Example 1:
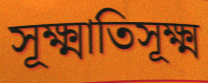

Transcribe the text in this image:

সূক্ষ্মাতিসূক্ষ্ম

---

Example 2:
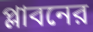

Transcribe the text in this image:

প্লাবনের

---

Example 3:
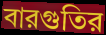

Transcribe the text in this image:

বারগুতির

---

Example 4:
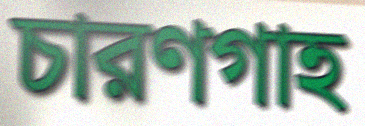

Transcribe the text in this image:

চারণগাহ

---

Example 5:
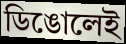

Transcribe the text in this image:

ডিঙোলেই